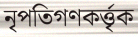
নৃপতিগণকর্ত্তৃক